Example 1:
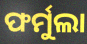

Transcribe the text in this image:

ଫର୍ମୁଲା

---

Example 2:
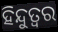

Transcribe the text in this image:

ହିନ୍ଦୁତ୍ବର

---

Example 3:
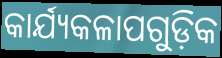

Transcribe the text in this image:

କାର୍ଯ୍ୟକଳାପଗୁଡ଼ିକ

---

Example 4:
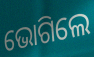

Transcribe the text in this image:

ଭୋଗିଲେ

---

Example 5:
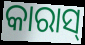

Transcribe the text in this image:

କାରାସ୍